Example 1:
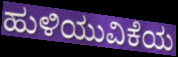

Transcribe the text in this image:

ಹುಳಿಯುವಿಕೆಯ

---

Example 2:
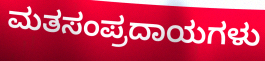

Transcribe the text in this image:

ಮತಸಂಪ್ರದಾಯಗಳು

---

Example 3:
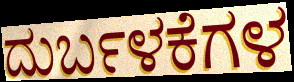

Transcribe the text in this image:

ದುರ್ಬಳಕೆಗಳ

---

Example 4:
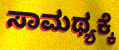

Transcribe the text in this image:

ಸಾಮಥ್ಯಕ್ಕೆ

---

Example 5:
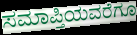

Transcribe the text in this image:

ಸಮಾಪ್ತಿಯವರೆಗೂ